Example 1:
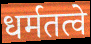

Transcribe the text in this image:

धर्मतत्वे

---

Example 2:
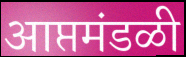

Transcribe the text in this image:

आप्तमंडळी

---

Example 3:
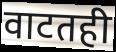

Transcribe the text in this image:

वाटतही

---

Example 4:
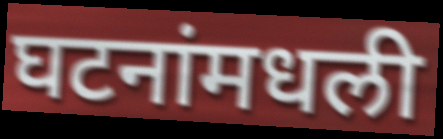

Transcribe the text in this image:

घटनांमधली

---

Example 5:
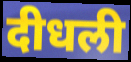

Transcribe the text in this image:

दीधली